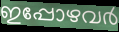
ഇപ്പോഴവർ